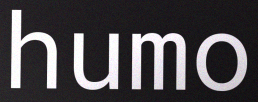
humo